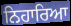
ਨਿਹਾਰਿਆ